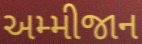
અમ્મીજાન